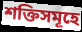
শক্তিসমূহে